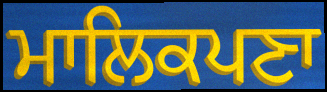
ਮਾਲਿਕਪਣਾ